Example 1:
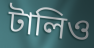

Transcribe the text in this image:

টালিও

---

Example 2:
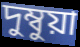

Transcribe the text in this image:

দুম্বুয়া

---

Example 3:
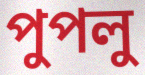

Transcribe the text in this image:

পুপলু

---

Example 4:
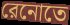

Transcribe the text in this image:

রেনোতে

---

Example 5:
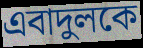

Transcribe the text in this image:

এবাদুলকে